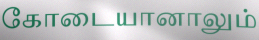
கோடையானாலும்